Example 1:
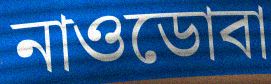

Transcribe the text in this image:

নাওডোবা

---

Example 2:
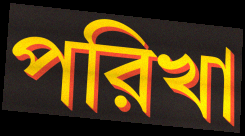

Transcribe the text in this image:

পরিখা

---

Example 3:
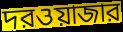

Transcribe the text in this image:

দরওয়াজার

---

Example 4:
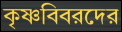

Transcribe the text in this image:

কৃষ্ণবিবরদের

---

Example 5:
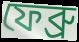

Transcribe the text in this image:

ফেব্রু